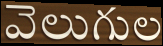
వెలుగుల